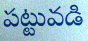
పట్టువడి